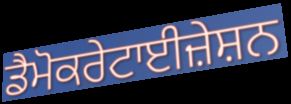
ਡੈਮੋਕਰੇਟਾਈਜ਼ੇਸ਼ਨ